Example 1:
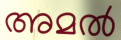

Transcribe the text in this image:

അമൽ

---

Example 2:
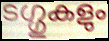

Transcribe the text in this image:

ടഗ്ഗുകളും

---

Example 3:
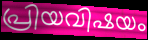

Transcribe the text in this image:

പ്രിയവിഷയം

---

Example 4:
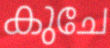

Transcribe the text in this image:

കുചേ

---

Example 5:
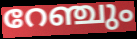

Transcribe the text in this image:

റേഞ്ചും